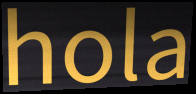
hola